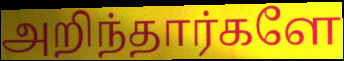
அறிந்தார்களே